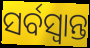
ସର୍ବସ୍ୱାନ୍ତ